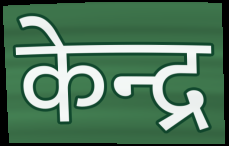
केन्‍द्र